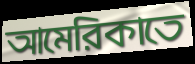
আমেরিকাতে